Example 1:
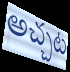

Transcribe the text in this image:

అచ్చట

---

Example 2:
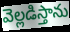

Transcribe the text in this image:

వెల్లడిస్తాను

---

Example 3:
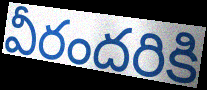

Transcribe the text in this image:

వీరందరికి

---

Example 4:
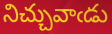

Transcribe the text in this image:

నిచ్చువాఁడు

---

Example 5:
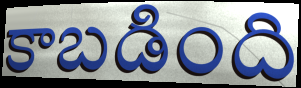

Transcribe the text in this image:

కాబడింది